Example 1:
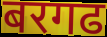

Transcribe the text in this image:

बरगढ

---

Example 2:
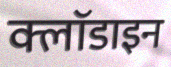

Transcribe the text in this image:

क्लॉडाइन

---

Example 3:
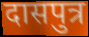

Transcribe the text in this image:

दासपुत्र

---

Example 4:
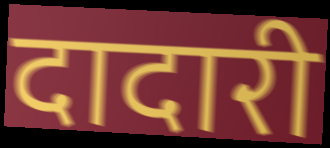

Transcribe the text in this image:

दादारी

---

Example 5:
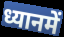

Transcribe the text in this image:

ध्यानमें